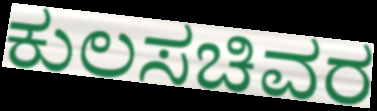
ಕುಲಸಚಿವರ